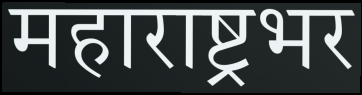
महाराष्ट्रभर